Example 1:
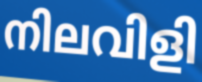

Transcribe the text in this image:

നിലവിളി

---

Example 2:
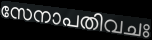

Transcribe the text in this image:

സേനാപതിവചഃ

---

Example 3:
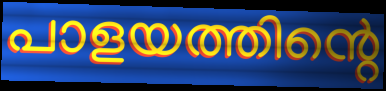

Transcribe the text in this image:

പാളയത്തിന്റെ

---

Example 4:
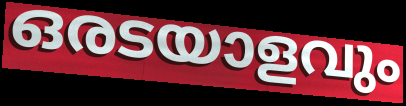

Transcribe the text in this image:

ഒരടയാളവും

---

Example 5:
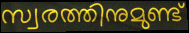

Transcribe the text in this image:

സ്വരത്തിനുമുണ്ട്